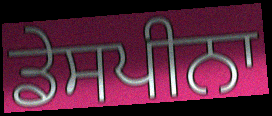
ਡੇਸਪੀਨਾ